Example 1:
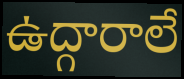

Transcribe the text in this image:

ఉద్గారాలే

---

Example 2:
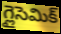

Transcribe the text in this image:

గ్లైసెమిక్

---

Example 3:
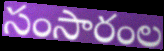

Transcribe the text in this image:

సంసారంల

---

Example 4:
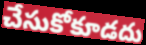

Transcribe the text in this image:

చేసుకోకూడదు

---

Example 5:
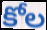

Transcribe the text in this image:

కోల